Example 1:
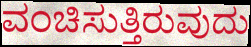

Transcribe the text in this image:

ವಂಚಿಸುತ್ತಿರುವುದು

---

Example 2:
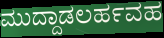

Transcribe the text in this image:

ಮುದ್ದಾಡಲರ್ಹವಹ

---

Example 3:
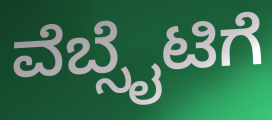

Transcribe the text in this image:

ವೆಬ್ಸೈಟಿಗೆ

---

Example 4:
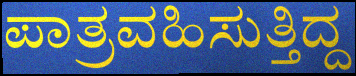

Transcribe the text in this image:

ಪಾತ್ರವಹಿಸುತ್ತಿದ್ದ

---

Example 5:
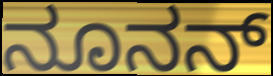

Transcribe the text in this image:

ನೂನನ್